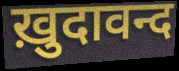
ख़ुदावन्द